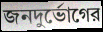
জনদুর্ভোগের